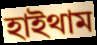
হাইথাম